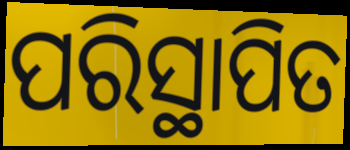
ପରିସ୍ଥାପିତ